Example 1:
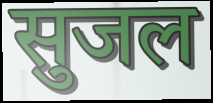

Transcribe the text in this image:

सुजल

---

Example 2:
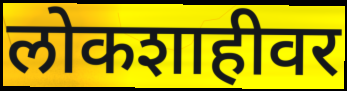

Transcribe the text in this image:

लोकशाहीवर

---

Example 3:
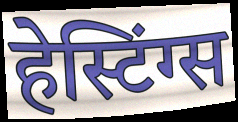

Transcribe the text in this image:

हेस्टिंग्स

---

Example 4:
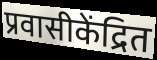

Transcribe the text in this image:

प्रवासीकेंद्रित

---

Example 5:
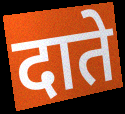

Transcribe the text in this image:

दाते